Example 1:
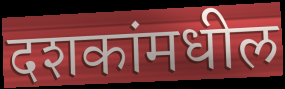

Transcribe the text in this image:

दशकांमधील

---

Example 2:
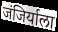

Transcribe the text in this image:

जंजिर्याला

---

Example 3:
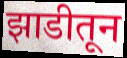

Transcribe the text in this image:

झाडीतून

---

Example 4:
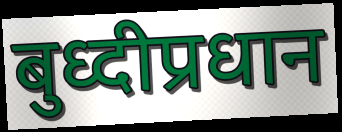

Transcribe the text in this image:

बुध्दीप्रधान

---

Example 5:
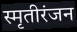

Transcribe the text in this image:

स्मृतीरंजन